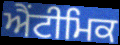
ਐਂਟੀਮਿਕ